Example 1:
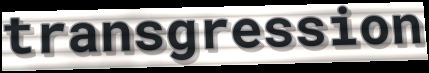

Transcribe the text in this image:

transgression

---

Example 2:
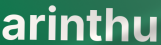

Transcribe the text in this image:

arinthu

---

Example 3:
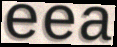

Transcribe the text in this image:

eea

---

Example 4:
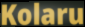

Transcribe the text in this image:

Kolaru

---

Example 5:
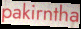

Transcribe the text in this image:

pakirntha